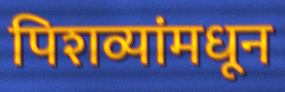
पिशव्यांमधून